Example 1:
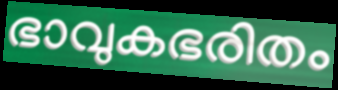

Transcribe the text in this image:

ഭാവുകഭരിതം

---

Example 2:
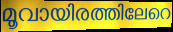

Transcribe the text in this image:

മൂവായിരത്തിലേറെ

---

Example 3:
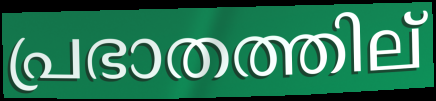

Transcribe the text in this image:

പ്രഭാതത്തില്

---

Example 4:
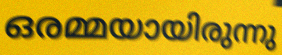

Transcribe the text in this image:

ഒരമ്മയായിരുന്നു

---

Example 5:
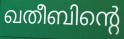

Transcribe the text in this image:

ഖതീബിന്റെ